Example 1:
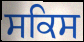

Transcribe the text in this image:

ਸਕਿਸ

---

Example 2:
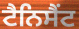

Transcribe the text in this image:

ਟੈਨਿਸੈਂਟ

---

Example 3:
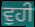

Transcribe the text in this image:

ਵੁਹੀ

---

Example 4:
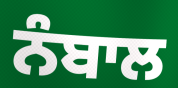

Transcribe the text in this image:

ਨੰਬਾਲ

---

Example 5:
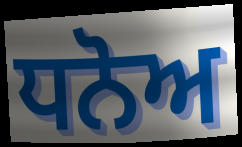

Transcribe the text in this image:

ਧਨੋਅ